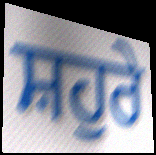
ਸ਼ਹੁਰੇ